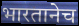
भारतानेच